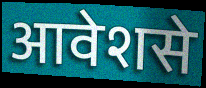
आवेशसे